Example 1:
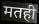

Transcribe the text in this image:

मतही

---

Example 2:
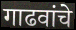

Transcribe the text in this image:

गाढवांचे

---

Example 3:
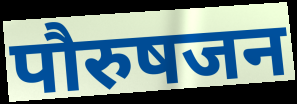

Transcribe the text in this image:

पौरुषजन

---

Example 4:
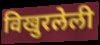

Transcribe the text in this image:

विखुरलेली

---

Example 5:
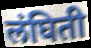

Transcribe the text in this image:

लंघिती